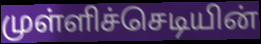
முள்ளிச்செடியின்